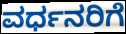
ವರ್ಧನರಿಗೆ